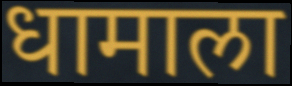
धामाला